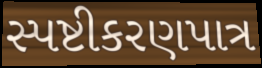
સ્પષ્ટીકરણપાત્ર